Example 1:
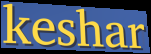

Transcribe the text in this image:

keshar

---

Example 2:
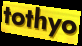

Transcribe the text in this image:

tothyo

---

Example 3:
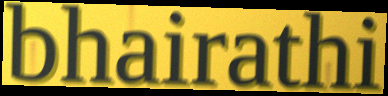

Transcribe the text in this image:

bhairathi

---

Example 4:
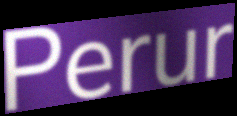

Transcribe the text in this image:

Perur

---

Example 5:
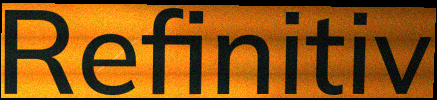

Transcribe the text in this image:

Refinitiv